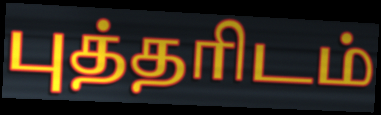
புத்தரிடம்